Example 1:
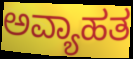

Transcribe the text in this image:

ಅವ್ಯಾಹತ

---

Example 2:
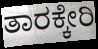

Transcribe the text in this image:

ತಾರಕ್ಕೇರಿ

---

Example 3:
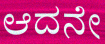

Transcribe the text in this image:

ಆದನೇ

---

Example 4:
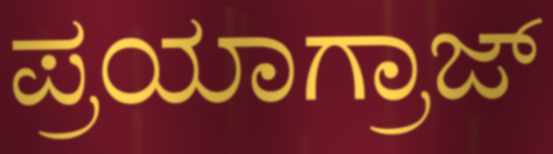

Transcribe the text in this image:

ಪ್ರಯಾಗ್ರಾಜ್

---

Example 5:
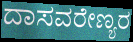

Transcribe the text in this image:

ದಾಸವರೇಣ್ಯರ